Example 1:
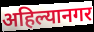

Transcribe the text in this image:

अहिल्यानगर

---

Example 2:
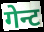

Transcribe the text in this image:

गेन्ट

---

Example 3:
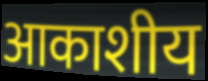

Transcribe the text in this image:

आकाशीय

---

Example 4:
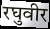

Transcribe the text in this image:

रघुवीर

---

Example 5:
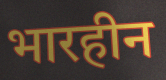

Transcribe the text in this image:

भारहीन